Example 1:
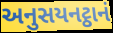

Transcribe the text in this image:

અનુસયનટ્ઠાનં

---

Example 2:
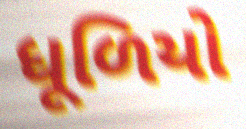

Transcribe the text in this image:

ધૂળિયો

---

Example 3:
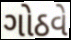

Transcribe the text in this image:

ગોઠવે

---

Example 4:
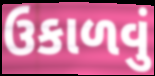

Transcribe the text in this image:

ઉકાળવું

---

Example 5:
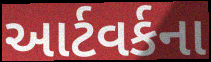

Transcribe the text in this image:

આર્ટવર્કના